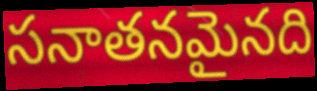
సనాతనమైనది